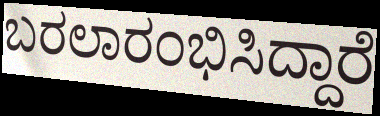
ಬರಲಾರಂಭಿಸಿದ್ದಾರೆ